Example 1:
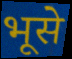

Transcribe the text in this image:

भूसे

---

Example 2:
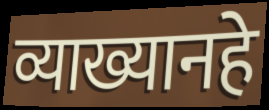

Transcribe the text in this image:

व्याख्यानहे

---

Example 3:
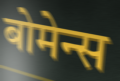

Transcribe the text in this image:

बोमेन्स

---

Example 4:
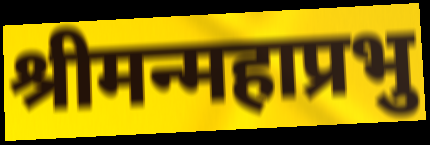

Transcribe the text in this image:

श्रीमन्महाप्रभु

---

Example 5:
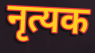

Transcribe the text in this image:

नृत्यक